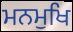
ਮਨਮੁਖਿ